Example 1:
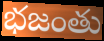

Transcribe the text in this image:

భజంతు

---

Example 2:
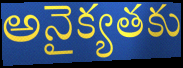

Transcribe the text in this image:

అనైక్యతకు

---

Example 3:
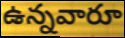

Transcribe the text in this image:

ఉన్నవారూ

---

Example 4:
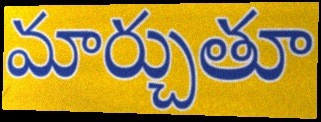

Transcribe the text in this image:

మార్చుతూ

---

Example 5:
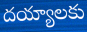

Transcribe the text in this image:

దయ్యాలకు